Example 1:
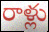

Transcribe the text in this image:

రాళ్లు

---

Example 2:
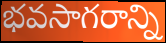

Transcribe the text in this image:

భవసాగరాన్ని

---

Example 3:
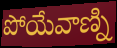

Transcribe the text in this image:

పోయేవాణ్ని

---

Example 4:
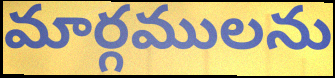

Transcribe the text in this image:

మార్గములను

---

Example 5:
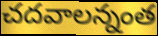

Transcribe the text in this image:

చదవాలన్నంత